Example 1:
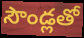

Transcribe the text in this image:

సౌండ్లతో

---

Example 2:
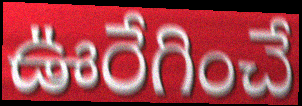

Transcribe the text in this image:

ఊరేగించే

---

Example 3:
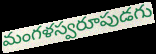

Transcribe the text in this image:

మంగళస్వరూపుడగు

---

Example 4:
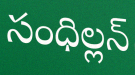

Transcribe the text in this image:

సంధిల్లన్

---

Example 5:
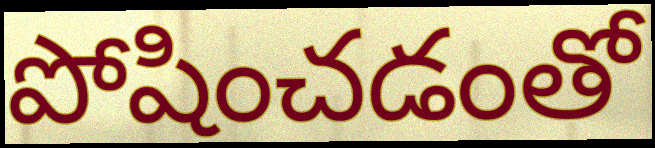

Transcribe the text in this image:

పోషించడంతో